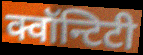
क्वॉन्टिटी